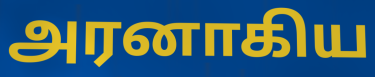
அரனாகிய